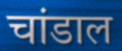
चांडाल